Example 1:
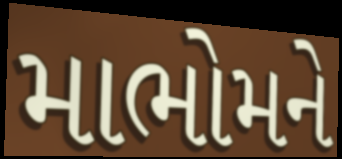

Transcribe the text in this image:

માભોમને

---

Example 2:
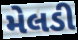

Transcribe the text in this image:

મેલડી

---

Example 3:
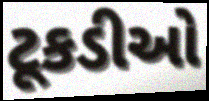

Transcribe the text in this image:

ટૂકડીઓ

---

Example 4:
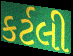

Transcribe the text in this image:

કર્ટલી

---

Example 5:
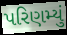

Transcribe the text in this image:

પરિણમ્યું